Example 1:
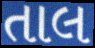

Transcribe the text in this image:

તાલ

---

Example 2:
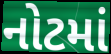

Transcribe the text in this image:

નોટમાં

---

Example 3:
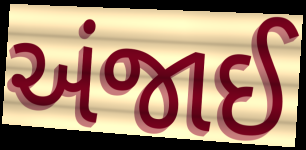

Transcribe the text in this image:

અંજાઈ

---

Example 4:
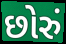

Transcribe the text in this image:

છોરું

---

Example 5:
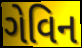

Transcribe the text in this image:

ગેવિન